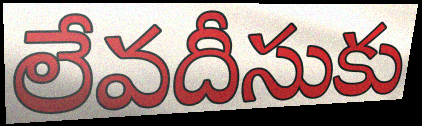
లేవదీసుకు